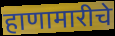
हाणामारीचे